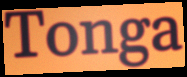
Tonga